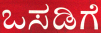
ಒಸಡಿಗೆ